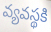
వ్యవస్థకి